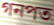
গনপত